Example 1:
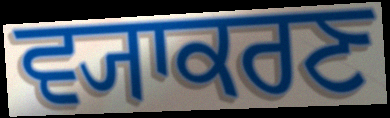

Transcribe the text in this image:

ਵ੍ਯਾਕਰਣ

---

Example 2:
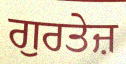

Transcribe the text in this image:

ਗੁਰਤੇਜ਼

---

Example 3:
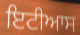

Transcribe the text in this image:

ਇਟੀਆਸ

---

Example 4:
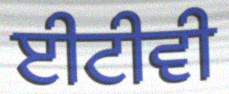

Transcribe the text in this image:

ਈਟੀਵੀ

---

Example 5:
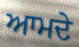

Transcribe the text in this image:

ਆਮਦੇ